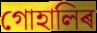
গোহালিৰ